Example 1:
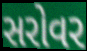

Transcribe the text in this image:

સરોવર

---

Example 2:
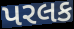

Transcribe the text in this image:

પરલક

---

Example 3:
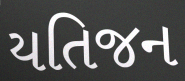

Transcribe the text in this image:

યતિજન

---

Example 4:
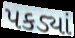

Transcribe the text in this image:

પકડ્યાં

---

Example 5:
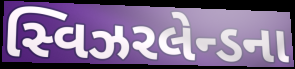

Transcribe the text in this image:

સ્વિઝરલેન્ડના